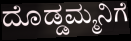
ದೊಡ್ಡಮ್ಮನಿಗೆ